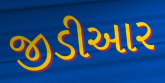
જીડીઆર